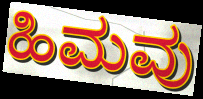
ಹಿಮವು